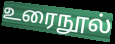
உரைநூல்